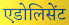
एडोलिसेंट